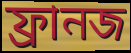
ফ্রানজ